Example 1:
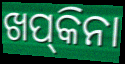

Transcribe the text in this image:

ଖପ୍‍କିନା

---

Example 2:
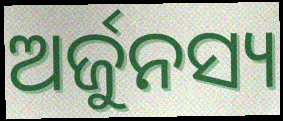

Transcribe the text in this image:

ଅର୍ଜୁନସ୍ୟ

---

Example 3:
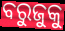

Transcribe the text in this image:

ବରୁଜୁକୁ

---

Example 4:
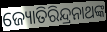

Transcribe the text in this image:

ଜ୍ୟୋତିରିନ୍ଦ୍ରନାଥଙ୍କ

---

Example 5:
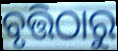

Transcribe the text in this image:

ବୃତ୍ତିଠାରୁ